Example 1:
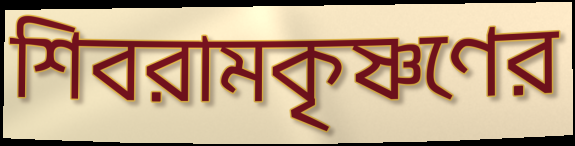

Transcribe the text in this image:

শিবরামকৃষ্ণণের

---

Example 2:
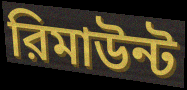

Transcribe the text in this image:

রিমাউন্ট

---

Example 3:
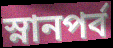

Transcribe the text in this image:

স্নানপর্ব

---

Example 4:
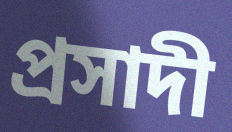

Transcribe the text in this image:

প্রসাদী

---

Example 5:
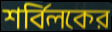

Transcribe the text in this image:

শর্বিলকের